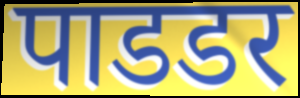
पाडडर